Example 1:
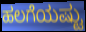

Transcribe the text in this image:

ಹಲಗೆಯಷ್ಟು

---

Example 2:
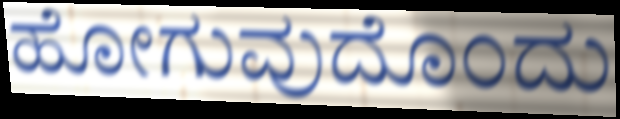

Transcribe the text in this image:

ಹೋಗುವುದೊಂದು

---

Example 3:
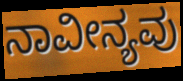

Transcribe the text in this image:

ನಾವೀನ್ಯವು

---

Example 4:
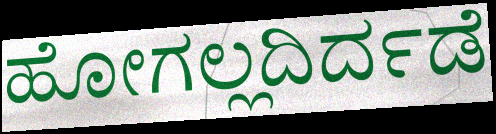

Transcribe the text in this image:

ಹೋಗಲ್ಲದಿರ್ದಡೆ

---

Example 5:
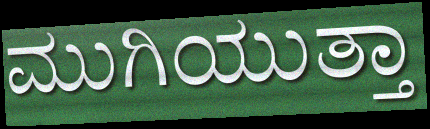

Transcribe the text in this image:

ಮುಗಿಯುತ್ತಾ